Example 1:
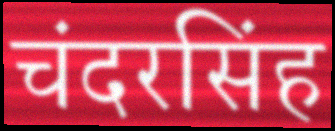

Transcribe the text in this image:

चंदरसिंह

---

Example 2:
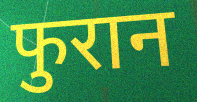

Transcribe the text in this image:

फुरान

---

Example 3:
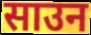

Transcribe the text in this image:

साउन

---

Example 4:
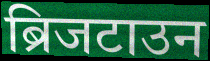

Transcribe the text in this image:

ब्रिजटाउन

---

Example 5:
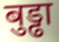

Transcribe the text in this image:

बुड्ढा